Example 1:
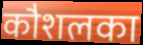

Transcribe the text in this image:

कौशलका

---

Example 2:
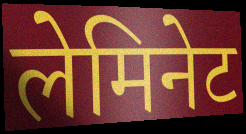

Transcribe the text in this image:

लेमिनेट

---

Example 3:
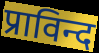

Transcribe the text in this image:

प्राविन्द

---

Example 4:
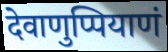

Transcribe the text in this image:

देवाणुप्पियाणं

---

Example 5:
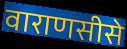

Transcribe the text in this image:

वाराणसीसे